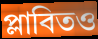
প্লাবিতও